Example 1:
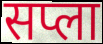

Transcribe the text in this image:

सप्ला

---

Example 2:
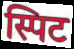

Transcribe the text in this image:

स्पिट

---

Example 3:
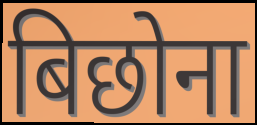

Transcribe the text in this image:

बिछोना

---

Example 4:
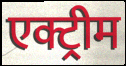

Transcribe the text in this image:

एक्ट्रीम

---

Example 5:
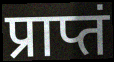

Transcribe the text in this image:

प्राप्तं